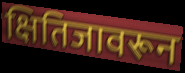
क्षितिजावरून